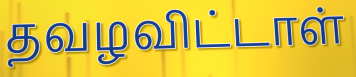
தவழவிட்டாள்